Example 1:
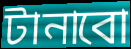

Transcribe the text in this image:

টানাবো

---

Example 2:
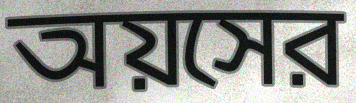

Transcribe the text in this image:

অয়সের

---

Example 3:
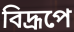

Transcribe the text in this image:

বিদ্রূপে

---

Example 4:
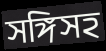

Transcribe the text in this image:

সঙ্গিসহ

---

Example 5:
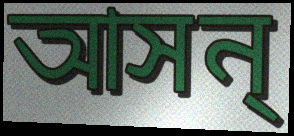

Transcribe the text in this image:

আসন্